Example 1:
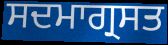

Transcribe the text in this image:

ਸਦਮਾਗ੍ਰਸਤ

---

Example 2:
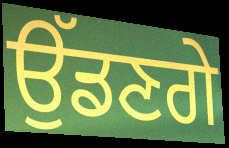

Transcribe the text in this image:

ਉੱਡਣਗੇ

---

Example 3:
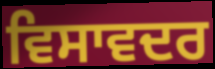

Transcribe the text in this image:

ਵਿਸਾਵਦਰ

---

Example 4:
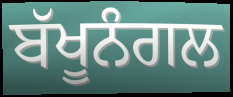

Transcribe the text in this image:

ਬੱਖੂਨੰਗਲ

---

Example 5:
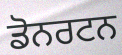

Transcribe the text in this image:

ਡੋਨਰਟਨ